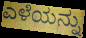
ಎಳೆಯನ್ನು